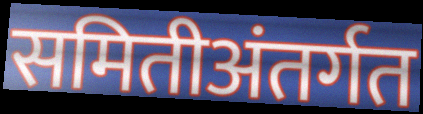
समितीअंतर्गत